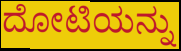
ದೋಟಿಯನ್ನು